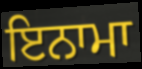
ਇਨਾਮਾ